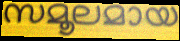
സമൂലമായ